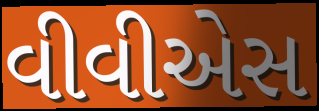
વીવીએસ